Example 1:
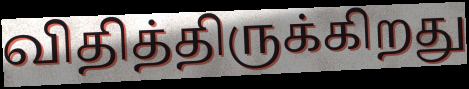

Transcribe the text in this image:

விதித்திருக்கிறது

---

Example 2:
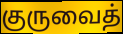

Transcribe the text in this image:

குருவைத்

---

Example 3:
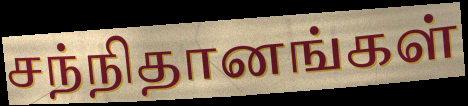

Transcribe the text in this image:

சந்நிதானங்கள்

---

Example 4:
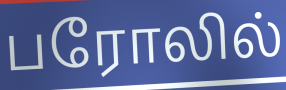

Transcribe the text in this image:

பரோலில்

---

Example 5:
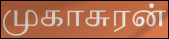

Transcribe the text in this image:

முகாசுரன்